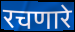
रचणारे